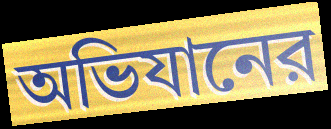
অভিযানের